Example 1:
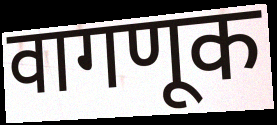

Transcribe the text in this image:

वागणूक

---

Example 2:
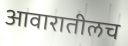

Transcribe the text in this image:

आवारातीलच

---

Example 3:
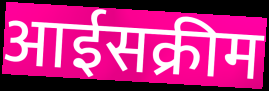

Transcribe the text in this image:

आईसक्रीम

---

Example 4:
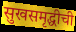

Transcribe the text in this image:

सुखसमृद्धीची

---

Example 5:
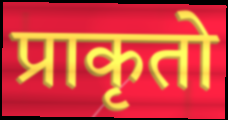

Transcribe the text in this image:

प्राकृतो